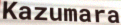
Kazumara